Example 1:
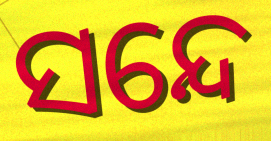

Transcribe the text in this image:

ସନ୍ଦେ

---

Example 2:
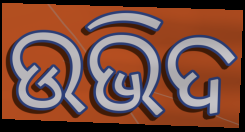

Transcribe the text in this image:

ଉଭିଦ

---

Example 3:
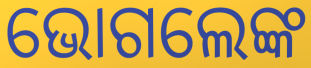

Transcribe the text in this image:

ଭୋଗଲେଙ୍କ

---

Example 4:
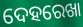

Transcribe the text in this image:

ଦେହରେଖା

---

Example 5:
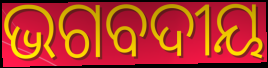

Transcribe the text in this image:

ଭଗବଦୀୟ